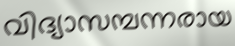
വിദ്യാസമ്പന്നരായ